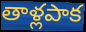
తాళ్లపాక